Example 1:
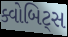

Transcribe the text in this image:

ક્વોબિટ્સ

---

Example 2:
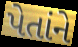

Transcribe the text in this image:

પેતાંને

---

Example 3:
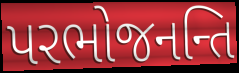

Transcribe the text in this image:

પરભોજનન્તિ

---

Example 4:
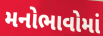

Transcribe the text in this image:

મનોભાવોમાં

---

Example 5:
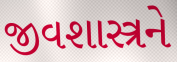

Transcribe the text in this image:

જીવશાસ્ત્રને